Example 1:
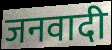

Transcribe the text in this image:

जनवादी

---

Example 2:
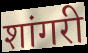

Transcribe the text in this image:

शांगरी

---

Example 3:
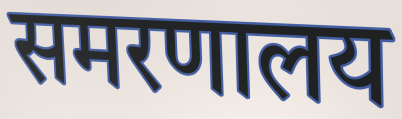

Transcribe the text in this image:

समरणालय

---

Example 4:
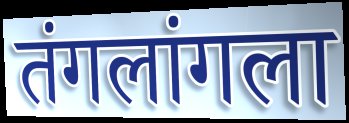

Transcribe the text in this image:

तंगलांगला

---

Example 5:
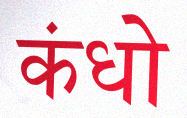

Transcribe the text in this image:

कंधो